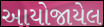
આયોજાયેલ